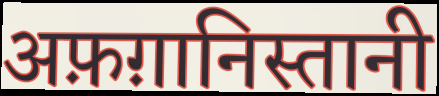
अफ़ग़ानिस्तानी